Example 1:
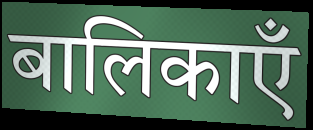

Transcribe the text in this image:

बालिकाएँ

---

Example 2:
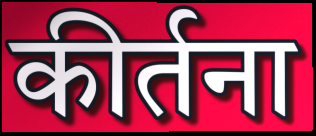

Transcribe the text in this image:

कीर्तना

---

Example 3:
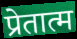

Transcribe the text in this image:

प्रेतात्म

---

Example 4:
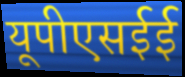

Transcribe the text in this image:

यूपीएसईई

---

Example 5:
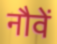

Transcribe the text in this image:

नौवें